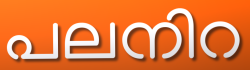
പലനിറ